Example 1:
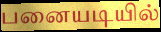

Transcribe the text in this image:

பனையடியில்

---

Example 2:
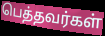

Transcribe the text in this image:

பெத்தவர்கள்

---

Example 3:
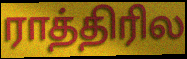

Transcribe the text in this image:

ராத்திரில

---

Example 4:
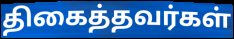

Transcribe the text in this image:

திகைத்தவர்கள்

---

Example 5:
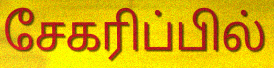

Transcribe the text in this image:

சேகரிப்பில்